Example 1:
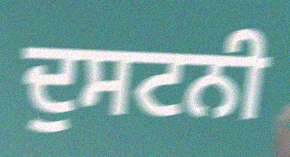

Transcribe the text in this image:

ਦੁਸਟਨੀ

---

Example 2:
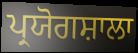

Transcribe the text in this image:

ਪ੍ਰਯੋਗਸ਼ਾਲਾ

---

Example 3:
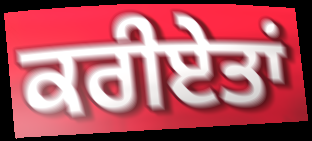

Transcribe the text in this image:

ਕਰੀਏਤਾਂ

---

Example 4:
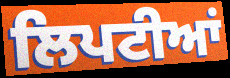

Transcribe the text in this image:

ਲਿਪਟੀਆਂ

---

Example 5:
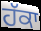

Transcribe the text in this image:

ਹੱਕਾ